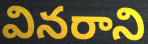
వినరాని